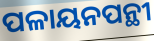
ପଳାୟନପନ୍ଥୀ